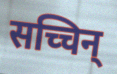
सच्चिन्